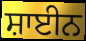
ਸ਼ਾਈਨ